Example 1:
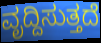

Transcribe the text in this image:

ವೃದ್ದಿಸುತ್ತದೆ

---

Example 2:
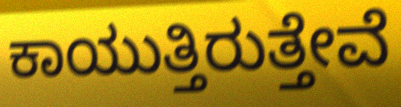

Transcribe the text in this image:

ಕಾಯುತ್ತಿರುತ್ತೇವೆ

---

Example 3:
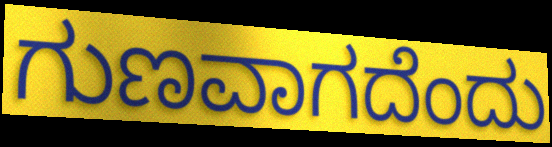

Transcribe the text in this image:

ಗುಣವಾಗದೆಂದು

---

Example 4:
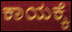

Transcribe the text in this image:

ಕಾಯಕ್ಕೆ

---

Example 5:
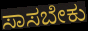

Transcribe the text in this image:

ಸಾಸಬೇಕು